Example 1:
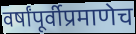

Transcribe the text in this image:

वर्षांपूर्वीप्रमाणेच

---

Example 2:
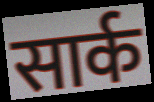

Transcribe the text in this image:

सार्क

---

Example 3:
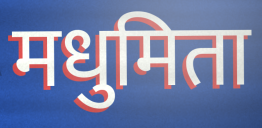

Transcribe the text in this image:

मधुमिता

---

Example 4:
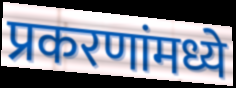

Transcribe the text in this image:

प्रकरणांमध्ये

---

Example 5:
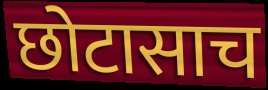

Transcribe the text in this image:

छोटासाच